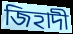
জিহাদী